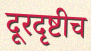
दूरदृष्टीच